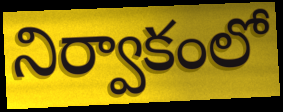
నిర్వాకంలో